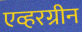
एव्हरग्रीन